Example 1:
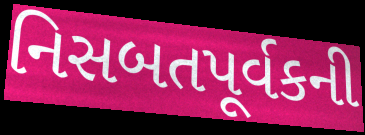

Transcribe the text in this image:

નિસબતપૂર્વકની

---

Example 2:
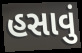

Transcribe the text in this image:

હસાવું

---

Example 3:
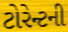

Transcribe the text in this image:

ટોરેન્ટની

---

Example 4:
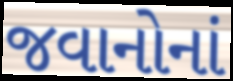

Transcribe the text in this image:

જવાનોનાં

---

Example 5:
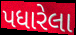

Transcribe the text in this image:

પધારેલા